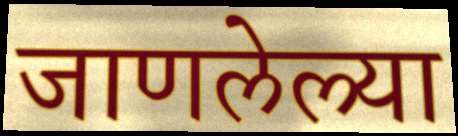
जाणलेल्या